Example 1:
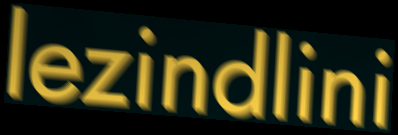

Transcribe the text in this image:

lezindlini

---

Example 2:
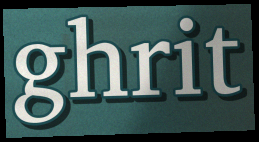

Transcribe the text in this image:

ghrit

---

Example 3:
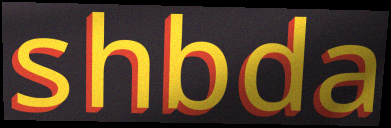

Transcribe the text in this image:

shbda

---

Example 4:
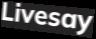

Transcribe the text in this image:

Livesay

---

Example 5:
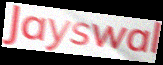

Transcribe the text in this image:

Jayswal